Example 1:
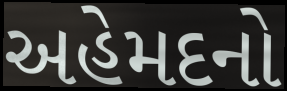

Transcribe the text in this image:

અહેમદનો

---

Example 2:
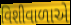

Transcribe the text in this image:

વિશીવાળાએ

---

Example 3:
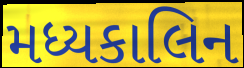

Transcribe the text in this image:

મધ્યકાલિન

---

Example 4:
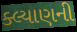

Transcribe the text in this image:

ક્લ્યાણની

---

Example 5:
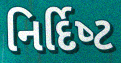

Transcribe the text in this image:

નિર્દિષ્‍ટ